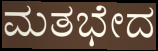
ಮತಭೇದ